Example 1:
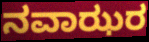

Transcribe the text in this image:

ನವಾಝರ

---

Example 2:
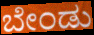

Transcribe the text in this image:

ಬೇಂಡು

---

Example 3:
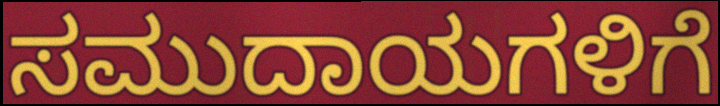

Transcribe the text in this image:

ಸಮುದಾಯಗಳಿಗೆ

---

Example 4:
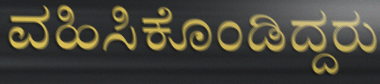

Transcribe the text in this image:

ವಹಿಸಿಕೊಂಡಿದ್ದರು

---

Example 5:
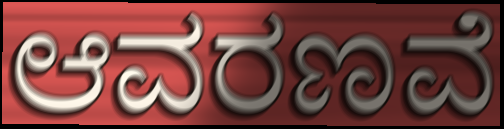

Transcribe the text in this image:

ಆವರಣವೆ